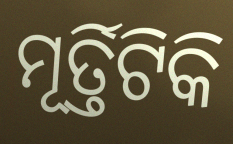
ମୂର୍ତ୍ତିଟିକି